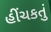
હીંચકતું